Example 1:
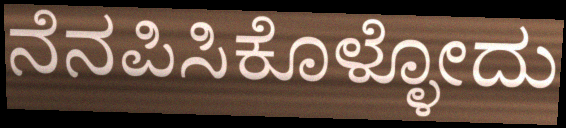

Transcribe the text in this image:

ನೆನಪಿಸಿಕೊಳ್ಳೋದು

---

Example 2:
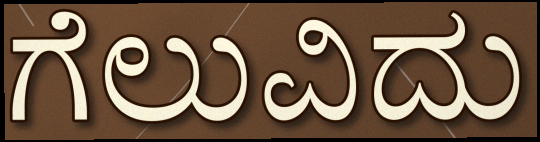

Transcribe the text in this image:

ಗೆಲುವಿದು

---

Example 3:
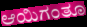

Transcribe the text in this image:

ಆಯಿಗಂತೂ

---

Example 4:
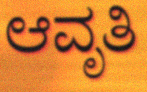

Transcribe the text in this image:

ಆವೃತಿ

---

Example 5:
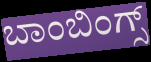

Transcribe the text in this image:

ಬಾಂಬಿಂಗ್ಸ್